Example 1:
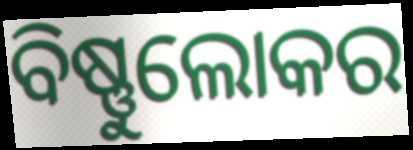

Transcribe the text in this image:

ବିଷ୍ଣୁଲୋକର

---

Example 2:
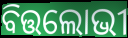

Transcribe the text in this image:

ବିତ୍ତଲୋଭୀ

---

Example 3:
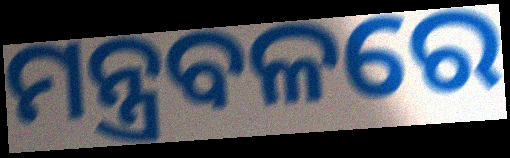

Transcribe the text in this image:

ମନ୍ତ୍ରବଳରେ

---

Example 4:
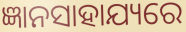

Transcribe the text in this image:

ଜ୍ଞାନସାହାଯ୍ୟରେ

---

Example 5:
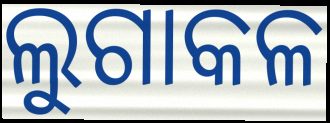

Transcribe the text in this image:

ଲୁଗାକଳ